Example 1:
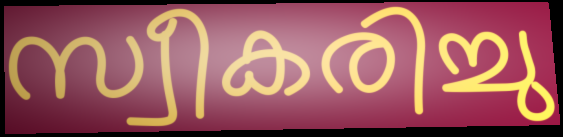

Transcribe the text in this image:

സ്വീകരിച്ചു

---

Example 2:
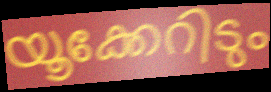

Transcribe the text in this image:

യൂക്കേറിടും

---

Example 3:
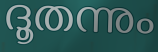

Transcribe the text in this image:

ദൂതന്നും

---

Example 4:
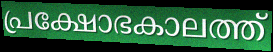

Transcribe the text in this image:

പ്രക്ഷോഭകാലത്ത്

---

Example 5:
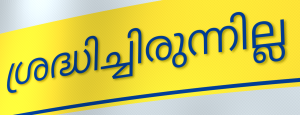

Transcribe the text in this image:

ശ്രദ്ധിച്ചിരുന്നില്ല